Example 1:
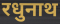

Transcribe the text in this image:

रधुनाथ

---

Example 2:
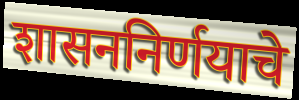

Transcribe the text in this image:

शासननिर्णयाचे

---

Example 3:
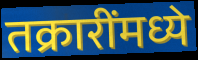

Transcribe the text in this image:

तक्रारींमध्ये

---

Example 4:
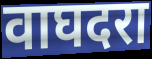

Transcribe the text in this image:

वाघदरा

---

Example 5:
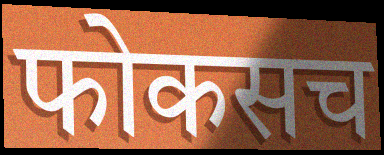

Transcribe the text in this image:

फोकसच